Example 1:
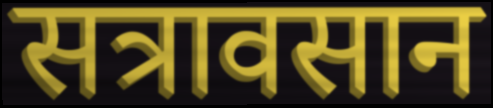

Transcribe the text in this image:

सत्रावसान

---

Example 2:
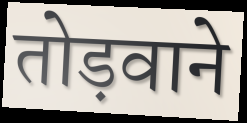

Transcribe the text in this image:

तोड़वाने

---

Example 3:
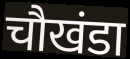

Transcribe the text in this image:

चौखंडा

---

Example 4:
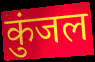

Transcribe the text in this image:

कुंजल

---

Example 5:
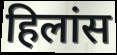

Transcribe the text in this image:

हिलांस